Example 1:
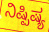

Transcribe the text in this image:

ನಿಷ್ಪಿಷ್ಯ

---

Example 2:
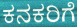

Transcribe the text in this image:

ಕನಕರಿಗೆ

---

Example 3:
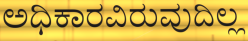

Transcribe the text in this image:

ಅಧಿಕಾರವಿರುವುದಿಲ್ಲ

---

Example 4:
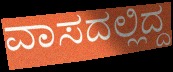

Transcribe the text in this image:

ವಾಸದಲ್ಲಿದ್ದ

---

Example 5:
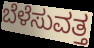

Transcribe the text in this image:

ಬೆಳೆಸುವತ್ತ